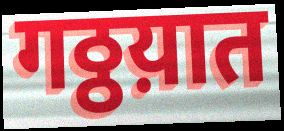
गठ्ठय़ात